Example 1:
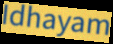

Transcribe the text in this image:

Idhayam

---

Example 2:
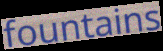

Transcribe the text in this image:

fountains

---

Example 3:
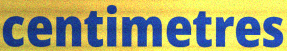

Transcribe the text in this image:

centimetres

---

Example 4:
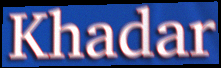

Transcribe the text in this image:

Khadar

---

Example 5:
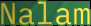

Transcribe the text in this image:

Nalam